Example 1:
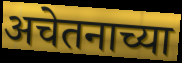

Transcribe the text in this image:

अचेतनाच्या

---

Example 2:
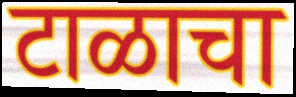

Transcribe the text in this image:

टाळाचा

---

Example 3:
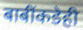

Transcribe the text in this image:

बाबींकडेही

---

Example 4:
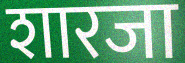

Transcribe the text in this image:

शारजा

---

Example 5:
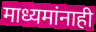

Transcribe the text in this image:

माध्यमांनाही